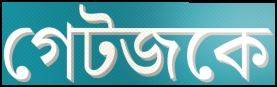
গেটজকে